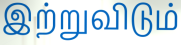
இற்றுவிடும்